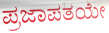
ಪ್ರಜಾಪತಯೇ